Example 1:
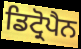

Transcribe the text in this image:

ਡਿਟ੍ਰੋਪੈਨ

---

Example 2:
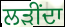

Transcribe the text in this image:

ਲੜੀਂਦਾ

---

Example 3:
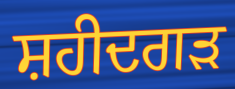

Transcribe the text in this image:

ਸ਼ਹੀਦਗੜ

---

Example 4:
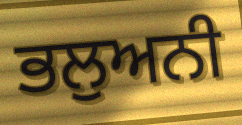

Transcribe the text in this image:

ਭਲੁਅਨੀ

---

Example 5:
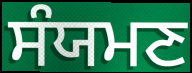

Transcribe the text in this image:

ਸੰਯਮਣ